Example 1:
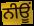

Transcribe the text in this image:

ਨੀਊਂ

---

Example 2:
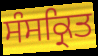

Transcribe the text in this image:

ਸੰਸਕ੍ਰਿਤ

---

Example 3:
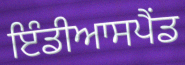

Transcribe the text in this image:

ਇੰਡੀਆਸਪੈਂਡ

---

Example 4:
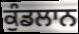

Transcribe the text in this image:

ਕੁੰਡਲਾਨ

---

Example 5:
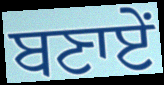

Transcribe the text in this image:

ਬਣਾਏਂ